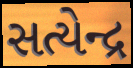
સત્યેન્દ્ર